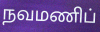
நவமணிப்